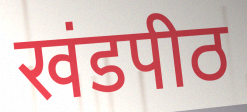
खंडपीठ